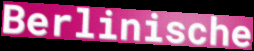
Berlinische